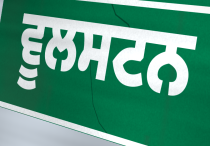
ਵੂਲਸਟਨ